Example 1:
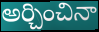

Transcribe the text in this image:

అర్చించినా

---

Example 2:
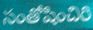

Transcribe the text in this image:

సంతోషించిరి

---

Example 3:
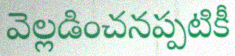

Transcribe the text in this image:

వెల్లడించనప్పటికీ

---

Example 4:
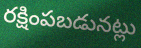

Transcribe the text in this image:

రక్షింపబడునట్లు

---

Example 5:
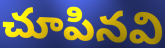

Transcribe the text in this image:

చూపినవి